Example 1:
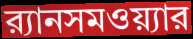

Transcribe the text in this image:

র‍্যানসমওয়্যার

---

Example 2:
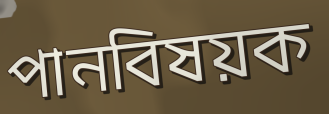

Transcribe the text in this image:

পানবিষয়ক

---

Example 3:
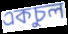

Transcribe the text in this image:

একচুল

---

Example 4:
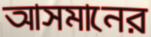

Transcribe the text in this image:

আসমানের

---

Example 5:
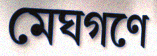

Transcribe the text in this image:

মেঘগণে